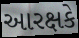
આરક્ષકે